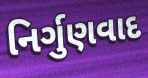
નિર્ગુણવાદ